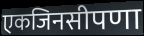
एकजिनसीपणा